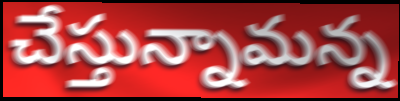
చేస్తున్నామన్న